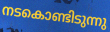
നടകൊണ്ടിടുന്നു